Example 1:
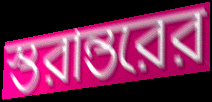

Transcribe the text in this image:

স্তরান্তরের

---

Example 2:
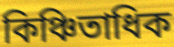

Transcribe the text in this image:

কিঞ্চিতাধিক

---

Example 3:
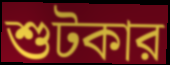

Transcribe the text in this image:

শুটকার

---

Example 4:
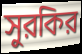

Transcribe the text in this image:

সুরকির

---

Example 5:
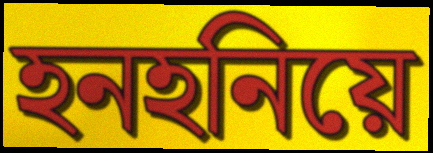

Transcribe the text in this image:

হনহনিয়ে